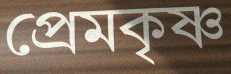
প্রেমকৃষ্ণ